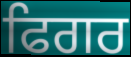
ਫਿਗਰ